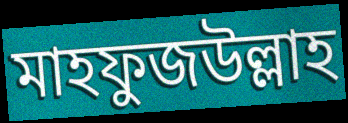
মাহফুজউল্লাহ